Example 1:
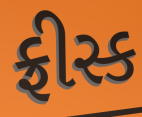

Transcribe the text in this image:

ફ્રીસ્ક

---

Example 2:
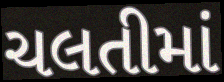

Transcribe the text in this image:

ચલતીમાં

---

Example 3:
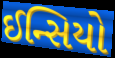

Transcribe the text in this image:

ઈન્સિયો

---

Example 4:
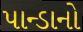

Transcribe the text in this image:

પાન્ડાનો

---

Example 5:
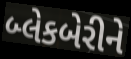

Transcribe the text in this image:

બ્લેકબેરીને